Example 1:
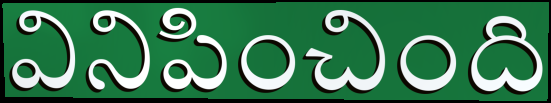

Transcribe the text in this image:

వినిపించింది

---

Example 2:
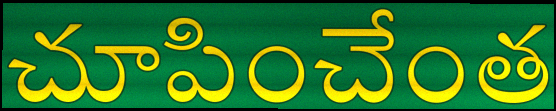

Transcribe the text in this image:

చూపించేంత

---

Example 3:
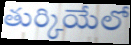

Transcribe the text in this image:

తుర్కియేలో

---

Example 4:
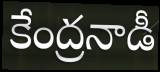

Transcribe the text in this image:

కేంద్రనాడీ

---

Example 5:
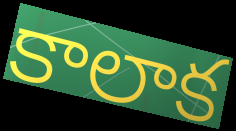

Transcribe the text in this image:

కాలాక